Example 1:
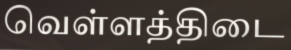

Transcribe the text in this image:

வெள்ளத்திடை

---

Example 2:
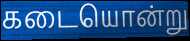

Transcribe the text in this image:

கடையொன்று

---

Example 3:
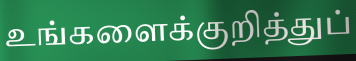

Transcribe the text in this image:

உங்களைக்குறித்துப்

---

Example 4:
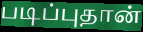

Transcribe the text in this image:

படிப்புதான்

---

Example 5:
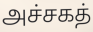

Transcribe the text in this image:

அச்சகத்